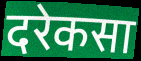
दरेकसा